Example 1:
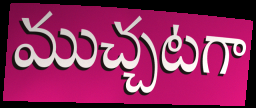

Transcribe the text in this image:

ముచ్చటగా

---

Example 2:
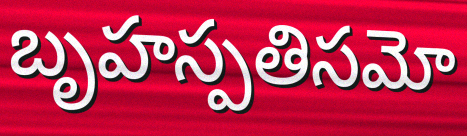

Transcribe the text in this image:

బృహస్పతిసమో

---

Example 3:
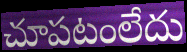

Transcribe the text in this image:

చూపటంలేదు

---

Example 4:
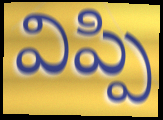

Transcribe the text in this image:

విప్పి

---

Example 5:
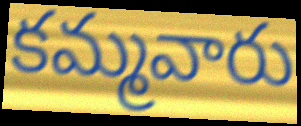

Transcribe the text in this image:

కమ్మవారు